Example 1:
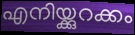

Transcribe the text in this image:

എനിയ്ക്കുറക്കം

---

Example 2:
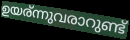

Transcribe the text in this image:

ഉയര്ന്നുവരാറുണ്ട്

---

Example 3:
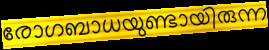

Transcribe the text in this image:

രോഗബാധയുണ്ടായിരുന്ന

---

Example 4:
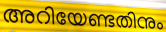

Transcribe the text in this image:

അറിയേണ്ടതിനും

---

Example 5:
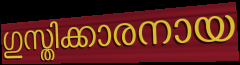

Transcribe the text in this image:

ഗുസ്തിക്കാരനായ